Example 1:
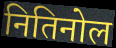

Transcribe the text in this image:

नितिनोल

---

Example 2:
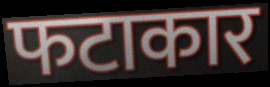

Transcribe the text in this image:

फटाकार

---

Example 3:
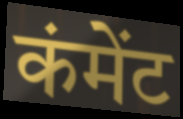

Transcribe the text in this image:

कंमेंट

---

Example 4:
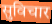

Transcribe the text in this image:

सुविचार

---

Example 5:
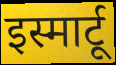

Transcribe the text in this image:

इस्मार्टू